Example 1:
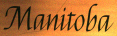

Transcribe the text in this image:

Manitoba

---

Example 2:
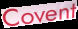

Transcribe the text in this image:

Covent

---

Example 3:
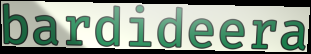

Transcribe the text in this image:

bardideera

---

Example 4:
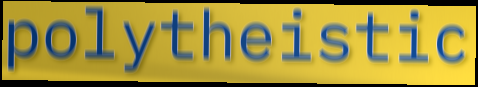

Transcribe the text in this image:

polytheistic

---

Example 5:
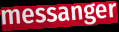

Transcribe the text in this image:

messanger